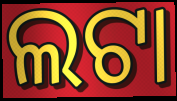
ଲଟା